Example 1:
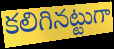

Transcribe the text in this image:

కలిగినట్టుగా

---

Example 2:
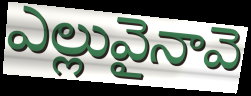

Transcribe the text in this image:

ఎల్లువైనావె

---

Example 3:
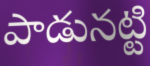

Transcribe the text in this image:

పాడునట్టి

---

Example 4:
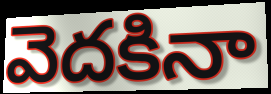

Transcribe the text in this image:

వెదకినా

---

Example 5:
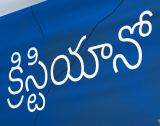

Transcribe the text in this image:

క్రిస్టియానో